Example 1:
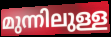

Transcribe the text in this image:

മുന്നിലുള്ള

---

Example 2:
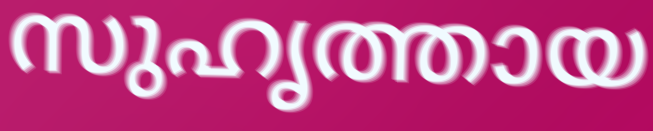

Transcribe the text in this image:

സുഹൃത്തായ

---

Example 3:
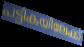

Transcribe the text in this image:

പട്ടികയിലേക്ക്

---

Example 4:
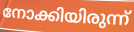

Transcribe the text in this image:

നോക്കിയിരുന്ന്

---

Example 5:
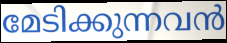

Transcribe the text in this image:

മേടിക്കുന്നവൻ